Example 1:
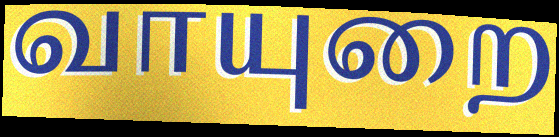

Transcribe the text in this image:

வாயுறை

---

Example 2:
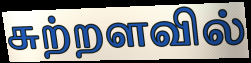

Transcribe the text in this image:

சுற்றளவில்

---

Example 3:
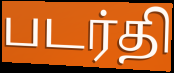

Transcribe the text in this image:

படர்தி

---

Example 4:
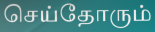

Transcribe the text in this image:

செய்தோரும்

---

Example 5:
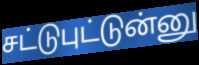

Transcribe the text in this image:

சட்டுபுட்டுன்னு